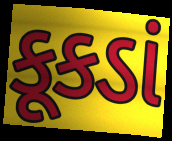
કૂકડાં